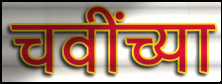
चवींच्या